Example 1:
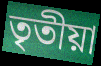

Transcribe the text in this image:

তৃতীয়া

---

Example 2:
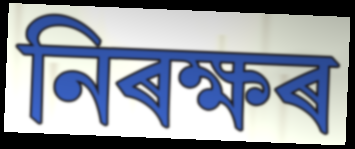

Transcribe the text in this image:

নিৰক্ষৰ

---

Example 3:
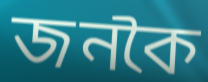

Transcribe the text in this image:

জনকৈ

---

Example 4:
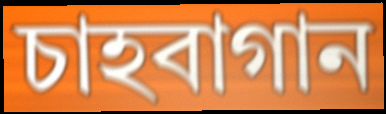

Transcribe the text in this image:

চাহবাগান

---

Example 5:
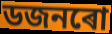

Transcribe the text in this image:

ডজনৰো